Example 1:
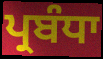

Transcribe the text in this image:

ਪ੍ਰਬੰਧਾ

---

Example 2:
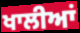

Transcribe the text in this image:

ਖਾਲੀਆਂ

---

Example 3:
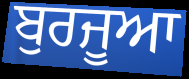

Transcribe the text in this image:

ਬੁਰਜੂਆ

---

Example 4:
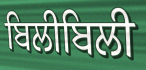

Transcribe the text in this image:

ਬਿਲੀਬਿਲੀ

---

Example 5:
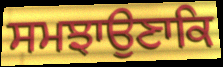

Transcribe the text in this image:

ਸਮਝਾਉਣਾਕਿ